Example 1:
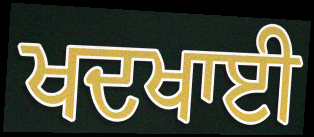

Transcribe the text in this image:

ਖਦਖਾਈ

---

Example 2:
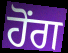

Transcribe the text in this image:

ਹੋਂਗ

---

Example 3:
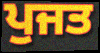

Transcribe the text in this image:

ਪੁਜਤ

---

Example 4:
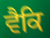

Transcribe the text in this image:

ਵੈਕਿ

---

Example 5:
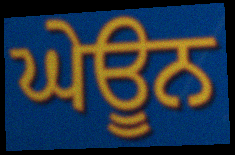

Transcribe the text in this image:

ਘੇਊਨ